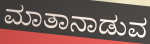
ಮಾತಾನಾಡುವ